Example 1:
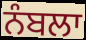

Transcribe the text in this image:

ਨੰਬਲਾ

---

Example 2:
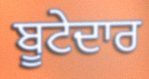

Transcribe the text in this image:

ਬੂਟੇਦਾਰ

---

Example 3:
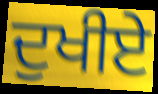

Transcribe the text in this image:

ਦੁਖੀਏ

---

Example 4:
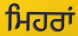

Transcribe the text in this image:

ਮਿਹਰਾਂ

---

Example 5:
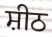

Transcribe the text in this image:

ਸ਼ੀਠ